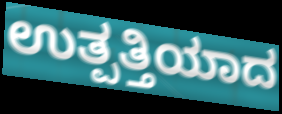
ಉತ್ಪತ್ತಿಯಾದ